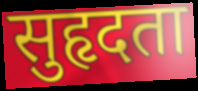
सुहृदता